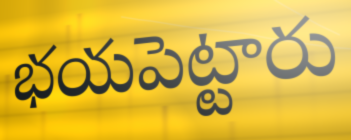
భయపెట్టారు